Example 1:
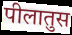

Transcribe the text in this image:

पीलातुस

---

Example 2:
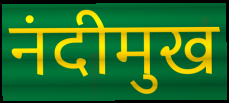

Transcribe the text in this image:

नंदीमुख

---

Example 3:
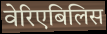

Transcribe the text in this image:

वेरिएबिलिस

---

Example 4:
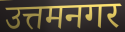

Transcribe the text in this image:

उत्तमनगर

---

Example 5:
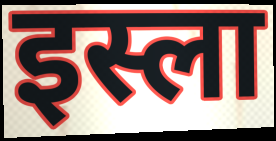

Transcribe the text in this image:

इस्ला